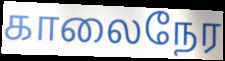
காலைநேர